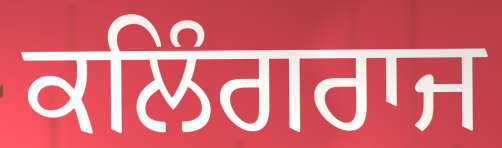
ਕਲਿੰਗਰਾਜ